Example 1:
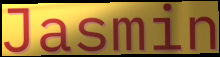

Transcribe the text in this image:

Jasmin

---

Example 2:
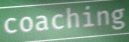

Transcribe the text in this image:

coaching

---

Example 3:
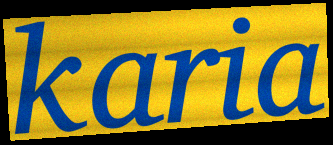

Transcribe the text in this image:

karia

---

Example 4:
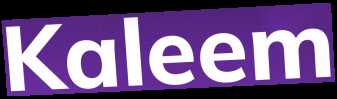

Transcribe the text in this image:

Kaleem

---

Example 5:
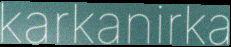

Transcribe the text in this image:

karkanirka